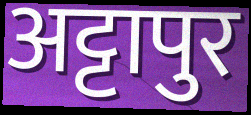
अट्टापुर